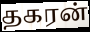
தகரன்